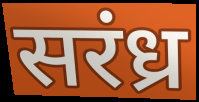
सरंध्र